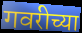
गवरीच्या